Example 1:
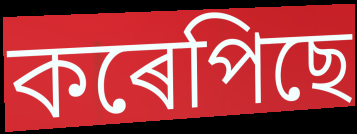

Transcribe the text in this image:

কৰেপিছে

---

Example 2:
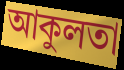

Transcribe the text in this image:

আকুলতা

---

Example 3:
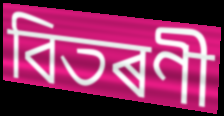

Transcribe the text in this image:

বিতৰণী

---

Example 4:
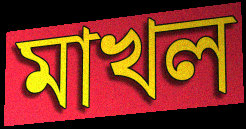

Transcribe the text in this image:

মাখল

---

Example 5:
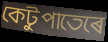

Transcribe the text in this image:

কেটুপাতেৰে